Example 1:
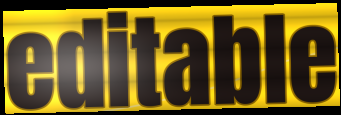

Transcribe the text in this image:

editable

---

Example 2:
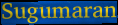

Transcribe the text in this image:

Sugumaran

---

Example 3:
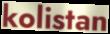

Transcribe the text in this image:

kolistan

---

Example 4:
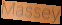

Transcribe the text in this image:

Massey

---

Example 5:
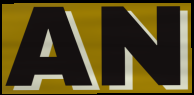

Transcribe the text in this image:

AN